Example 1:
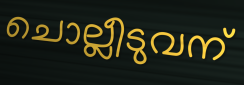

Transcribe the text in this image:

ചൊല്ലീടുവന്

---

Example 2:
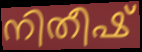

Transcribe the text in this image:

നിതീഷ്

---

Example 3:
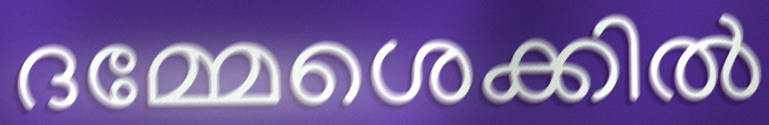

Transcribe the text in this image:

ദമ്മേശെക്കിൽ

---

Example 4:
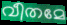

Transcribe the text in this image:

വീതമേ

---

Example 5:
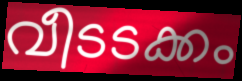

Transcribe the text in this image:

വീടടക്കം